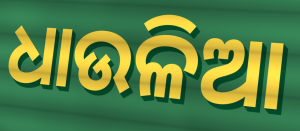
ଧାଉଳିଆ